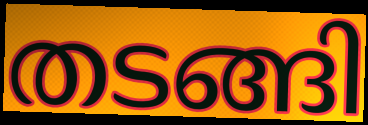
തടങ്ങി